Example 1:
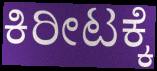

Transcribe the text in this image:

ಕಿರೀಟಕ್ಕೆ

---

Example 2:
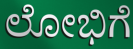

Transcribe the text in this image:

ಲೋಭಿಗೆ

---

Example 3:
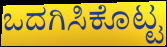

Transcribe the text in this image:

ಒದಗಿಸಿಕೊಟ್ಟ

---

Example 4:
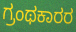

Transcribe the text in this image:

ಗ್ರಂಥಕಾರರ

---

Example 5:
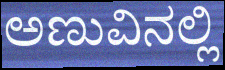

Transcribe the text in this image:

ಅಣುವಿನಲ್ಲಿ